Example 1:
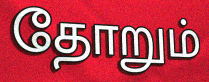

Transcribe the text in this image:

தோறும்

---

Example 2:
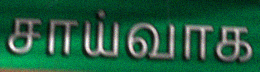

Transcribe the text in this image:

சாய்வாக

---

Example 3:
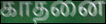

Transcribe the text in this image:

காதனை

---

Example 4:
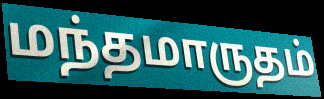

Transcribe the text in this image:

மந்தமாருதம்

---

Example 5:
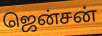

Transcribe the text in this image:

ஜென்சன்